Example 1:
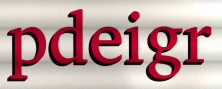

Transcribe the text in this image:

pdeigr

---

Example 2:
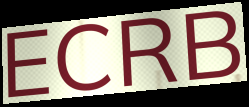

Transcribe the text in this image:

ECRB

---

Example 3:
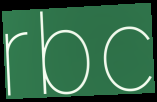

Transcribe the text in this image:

rbc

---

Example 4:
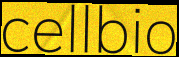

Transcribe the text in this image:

cellbio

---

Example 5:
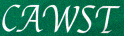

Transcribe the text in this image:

CAWST